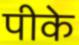
पीके